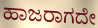
ಹಾಜರಾಗದೇ